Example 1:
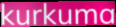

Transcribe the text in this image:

kurkuma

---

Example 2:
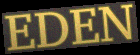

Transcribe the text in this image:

EDEN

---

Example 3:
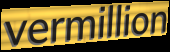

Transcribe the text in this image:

vermillion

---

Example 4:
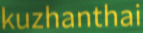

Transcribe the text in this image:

kuzhanthai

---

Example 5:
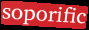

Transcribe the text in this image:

soporific